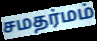
சமதர்மம்